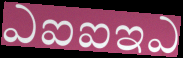
ఎఐఐఇఎ